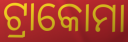
ଟ୍ରାକୋମା